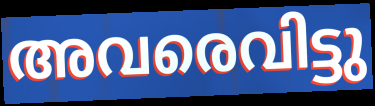
അവരെവിട്ടു